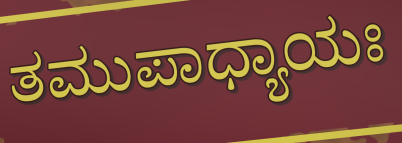
ತಮುಪಾಧ್ಯಾಯಃ